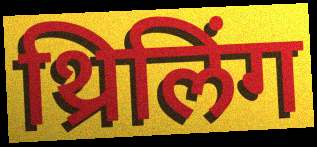
थ्रिलिंग